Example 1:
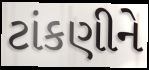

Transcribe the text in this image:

ટાંકણીને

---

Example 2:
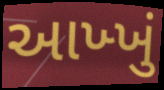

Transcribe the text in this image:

આખ્ખું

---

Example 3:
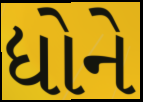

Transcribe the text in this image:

દ્યોને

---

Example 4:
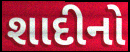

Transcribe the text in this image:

શાદીનો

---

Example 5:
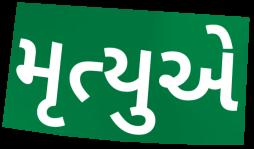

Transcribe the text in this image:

મૃત્યુએ